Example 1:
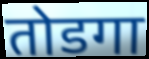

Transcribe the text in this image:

तोडगा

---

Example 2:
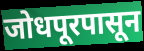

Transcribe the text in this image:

जोधपूरपासून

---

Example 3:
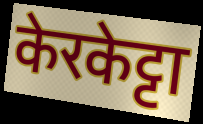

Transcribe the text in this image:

केरकेट्टा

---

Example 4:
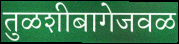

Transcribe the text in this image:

तुळशीबागेजवळ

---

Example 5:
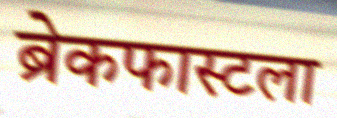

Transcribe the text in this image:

ब्रेकफास्टला